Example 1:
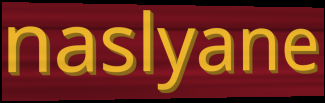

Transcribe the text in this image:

naslyane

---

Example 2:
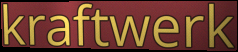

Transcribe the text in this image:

kraftwerk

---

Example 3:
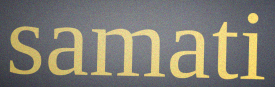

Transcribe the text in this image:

samati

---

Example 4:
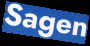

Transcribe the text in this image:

Sagen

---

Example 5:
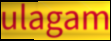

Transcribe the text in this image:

ulagam